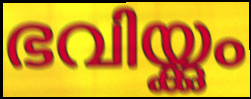
ഭവിയ്ക്കും